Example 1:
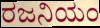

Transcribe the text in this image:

ರಜನಿಯಂ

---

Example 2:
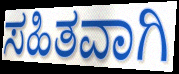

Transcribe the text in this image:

ಸಹಿತವಾಗಿ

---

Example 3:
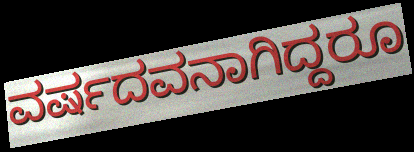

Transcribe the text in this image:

ವರ್ಷದವನಾಗಿದ್ದರೂ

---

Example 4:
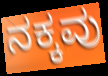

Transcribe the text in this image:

ನಕ್ಕವು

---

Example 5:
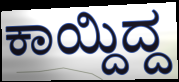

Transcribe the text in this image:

ಕಾಯ್ದಿದ್ದ